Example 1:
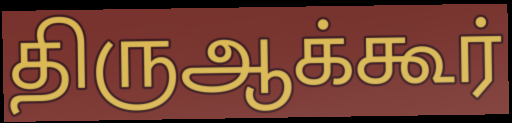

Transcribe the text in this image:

திருஆக்கூர்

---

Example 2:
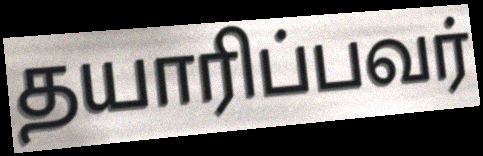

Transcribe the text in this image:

தயாரிப்பவர்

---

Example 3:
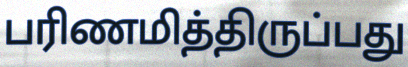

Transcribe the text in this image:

பரிணமித்திருப்பது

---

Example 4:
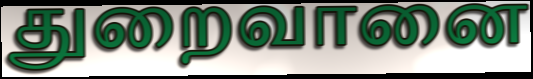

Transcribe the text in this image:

துறைவானை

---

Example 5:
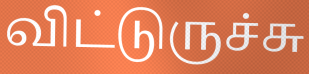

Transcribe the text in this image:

விட்டுருச்சு